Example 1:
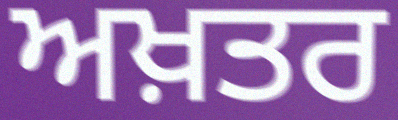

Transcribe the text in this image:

ਅਖ਼ਤਰ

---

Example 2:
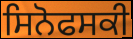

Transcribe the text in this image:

ਸਿਨੋਫਸਕੀ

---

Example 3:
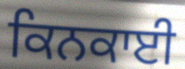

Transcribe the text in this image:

ਕਿਨਕਾਈ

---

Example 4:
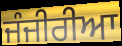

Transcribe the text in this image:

ਜੰਜੀਰੀਆ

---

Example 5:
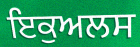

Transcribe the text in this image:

ਇਕੁਅਲਸ